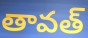
తావత్